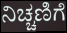
ನಿಚ್ಚಣಿಗೆ